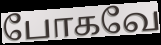
போகவே